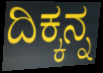
ದಿಕ್ಕನ್ನ